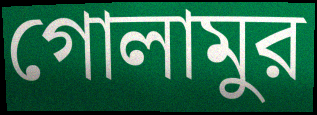
গোলামুর